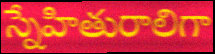
స్నేహితురాలిగా